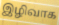
இழிவாக